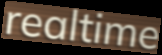
realtime